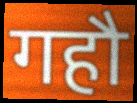
गहौ